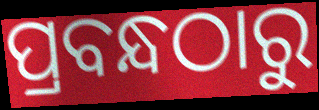
ପ୍ରବନ୍ଧଠାରୁ